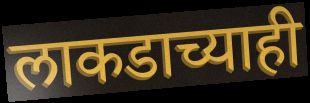
लाकडाच्याही